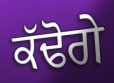
ਕੱਢੋਗੇ